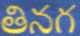
తినగ